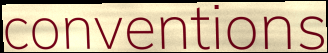
conventions